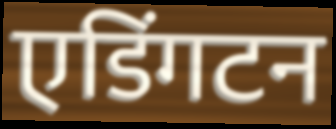
एडिंगटन